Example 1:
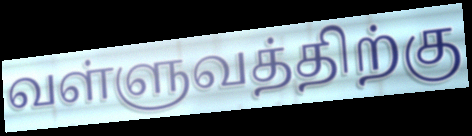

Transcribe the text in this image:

வள்ளுவத்திற்கு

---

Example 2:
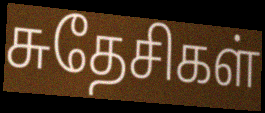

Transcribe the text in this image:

சுதேசிகள்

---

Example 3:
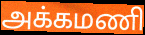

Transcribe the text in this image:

அக்கமணி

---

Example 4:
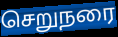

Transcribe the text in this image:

செறுநரை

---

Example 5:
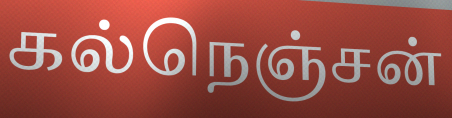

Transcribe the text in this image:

கல்நெஞ்சன்